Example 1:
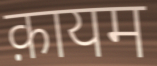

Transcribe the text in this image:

क़ायम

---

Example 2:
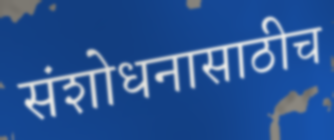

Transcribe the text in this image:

संशोधनासाठीच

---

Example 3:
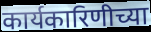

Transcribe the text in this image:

कार्यकारिणीच्या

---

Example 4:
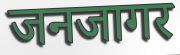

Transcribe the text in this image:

जनजागर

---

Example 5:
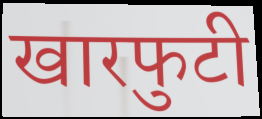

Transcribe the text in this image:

खारफुटी